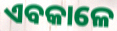
ଏବକାଳେ